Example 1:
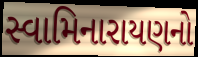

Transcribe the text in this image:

સ્વામિનારાયણનો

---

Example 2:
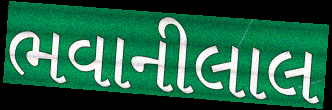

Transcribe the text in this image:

ભવાનીલાલ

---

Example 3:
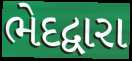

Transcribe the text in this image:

ભેદદ્વારા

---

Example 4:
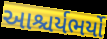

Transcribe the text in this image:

આશ્ચર્યભર્યો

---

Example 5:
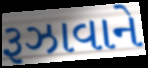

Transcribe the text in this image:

રૂઝાવાને